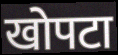
खोपटा